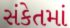
સંકેતમાં